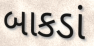
બાકડાં